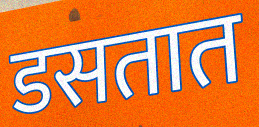
डसतात